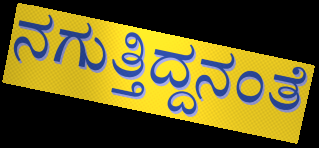
ನಗುತ್ತಿದ್ದನಂತೆ